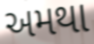
અમથા